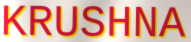
KRUSHNA